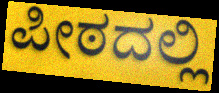
ಪೀಠದಲ್ಲಿ